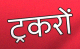
ट्रकरों